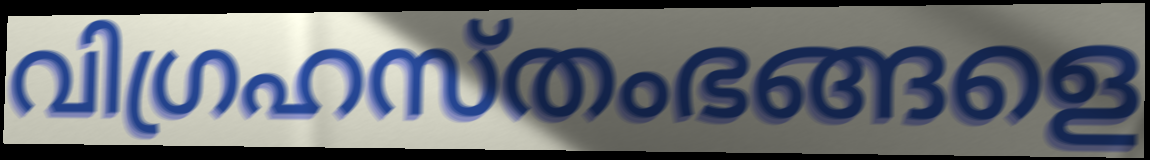
വിഗ്രഹസ്തംഭങ്ങളെ